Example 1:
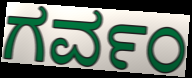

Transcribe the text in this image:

ಗರ್ವಂ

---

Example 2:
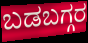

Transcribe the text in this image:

ಬಡಬಗ್ಗರ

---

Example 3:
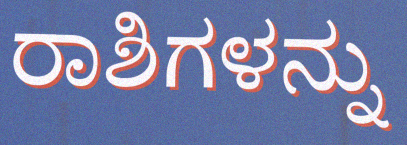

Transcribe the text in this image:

ರಾಶಿಗಳನ್ನು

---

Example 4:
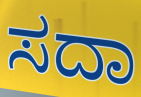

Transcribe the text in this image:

ಸದಾ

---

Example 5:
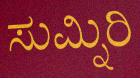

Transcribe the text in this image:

ಸುಮ್ನಿರಿ